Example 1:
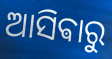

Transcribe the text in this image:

ଆସିଵାରୁ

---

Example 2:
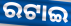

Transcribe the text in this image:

ରଟାଇ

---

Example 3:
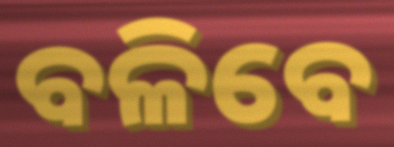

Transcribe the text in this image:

ବଳିବେ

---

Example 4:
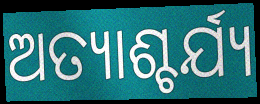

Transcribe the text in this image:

ଅତ୍ୟାଶ୍ଚର୍ଯ୍ୟ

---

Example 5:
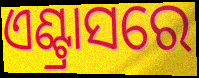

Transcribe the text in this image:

ଏଣ୍ଟ୍ରାସରେ